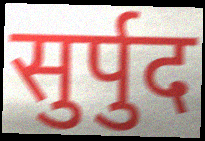
सुर्पुद